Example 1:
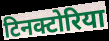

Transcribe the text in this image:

टिनक्टोरिया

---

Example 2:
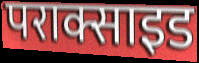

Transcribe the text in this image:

पराक्साइड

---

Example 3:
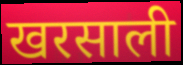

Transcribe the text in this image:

खरसाली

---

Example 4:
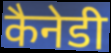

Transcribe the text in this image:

कैनेडी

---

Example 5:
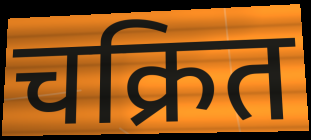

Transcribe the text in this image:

चक्रित